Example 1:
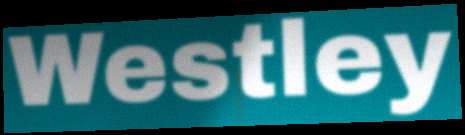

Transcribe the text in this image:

Westley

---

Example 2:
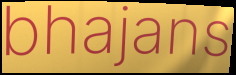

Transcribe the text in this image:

bhajans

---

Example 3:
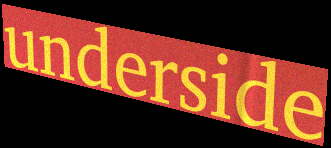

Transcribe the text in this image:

underside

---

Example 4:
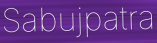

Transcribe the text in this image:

Sabujpatra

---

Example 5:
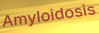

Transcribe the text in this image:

Amyloidosis